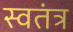
स्वतंत्र